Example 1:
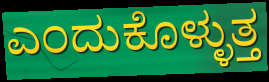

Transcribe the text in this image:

ಎಂದುಕೊಳ್ಳುತ್ತ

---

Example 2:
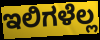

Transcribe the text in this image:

ಇಲಿಗಳೆಲ್ಲ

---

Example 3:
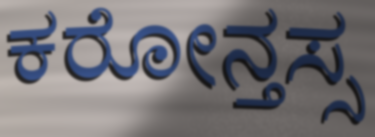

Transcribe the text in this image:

ಕರೋನ್ತಸ್ಸ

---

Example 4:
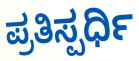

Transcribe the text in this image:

ಪ್ರತಿಸ್ಪರ್ಧಿ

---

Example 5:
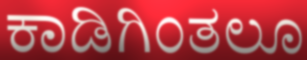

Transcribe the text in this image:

ಕಾಡಿಗಿಂತಲೂ